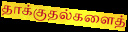
தாக்குதல்களைத்